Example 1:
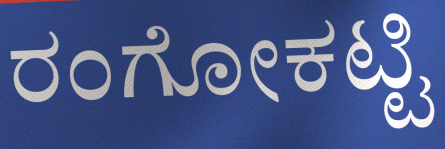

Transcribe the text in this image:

ರಂಗೋಕಟ್ಟಿ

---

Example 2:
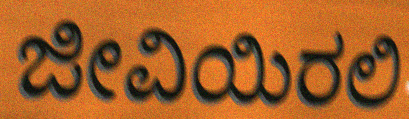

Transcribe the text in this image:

ಜೀವಿಯಿರಲಿ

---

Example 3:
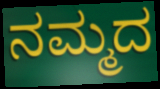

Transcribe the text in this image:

ನಮ್ಮದ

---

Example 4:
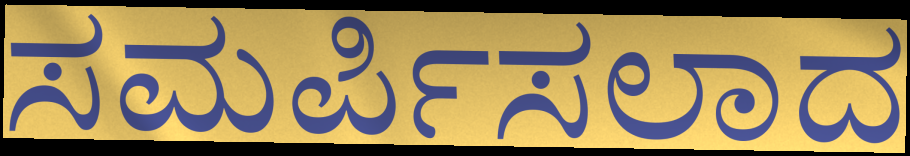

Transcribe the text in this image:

ಸಮರ್ಪಿಸಲಾದ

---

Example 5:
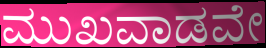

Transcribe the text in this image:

ಮುಖವಾಡವೇ